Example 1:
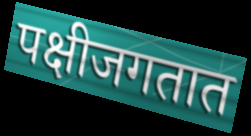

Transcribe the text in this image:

पक्षीजगतात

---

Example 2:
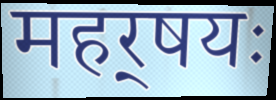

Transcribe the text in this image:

महर्षयः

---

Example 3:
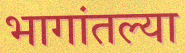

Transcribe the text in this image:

भागांतल्या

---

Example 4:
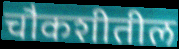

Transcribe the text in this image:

चौकशीतील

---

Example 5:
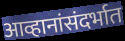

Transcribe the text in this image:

आव्हानांसंदर्भात